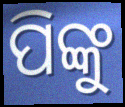
ପିଙ୍କୁ